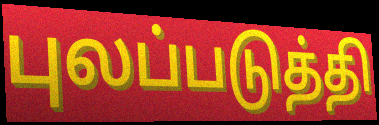
புலப்படுத்தி